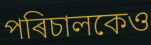
পৰিচালকেও